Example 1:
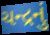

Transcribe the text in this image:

ચન્દ્રનું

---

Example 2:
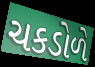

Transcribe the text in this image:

ચકડોળે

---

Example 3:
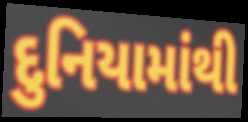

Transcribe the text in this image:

દુનિયામાંથી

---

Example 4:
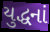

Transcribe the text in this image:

યુદ્ધનાં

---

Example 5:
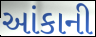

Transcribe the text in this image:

આંકાની